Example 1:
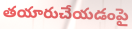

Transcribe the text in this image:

తయారుచేయడంపై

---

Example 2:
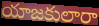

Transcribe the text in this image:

యాజకులారా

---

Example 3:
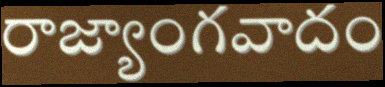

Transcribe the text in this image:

రాజ్యాంగవాదం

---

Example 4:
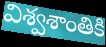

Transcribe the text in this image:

విశ్వశాంతికి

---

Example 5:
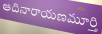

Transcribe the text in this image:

ఆదినారాయణమూర్తి